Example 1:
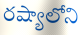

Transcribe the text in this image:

రష్యాలోని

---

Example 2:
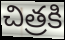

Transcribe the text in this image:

చిత్రకి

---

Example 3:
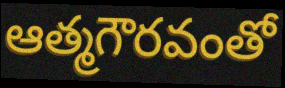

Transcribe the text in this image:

ఆత్మగౌరవంతో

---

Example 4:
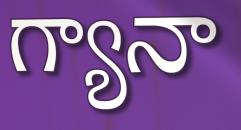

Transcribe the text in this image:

గ్యానా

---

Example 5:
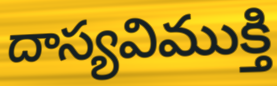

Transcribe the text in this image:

దాస్యవిముక్తి